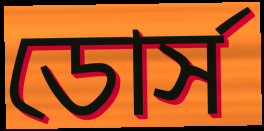
ডোর্স